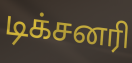
டிக்சனரி